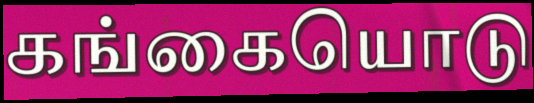
கங்கையொடு